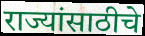
राज्यांसाठीचे